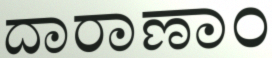
ದಾರಾಣಾಂ